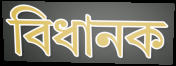
বিধানক